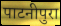
पाटनीपुरा